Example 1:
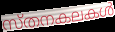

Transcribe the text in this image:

സ്തനകലകൾ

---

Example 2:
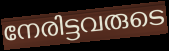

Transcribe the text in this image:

നേരിട്ടവരുടെ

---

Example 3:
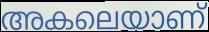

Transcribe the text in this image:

അകലെയാണ്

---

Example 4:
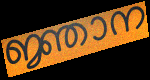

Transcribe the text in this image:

ജ്ഞാന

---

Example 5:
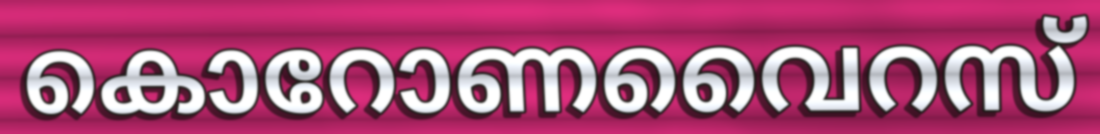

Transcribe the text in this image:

കൊറോണവൈറസ്